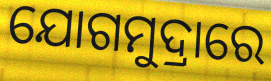
ଯୋଗମୁଦ୍ରାରେ